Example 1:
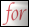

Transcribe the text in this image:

for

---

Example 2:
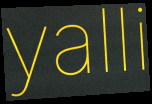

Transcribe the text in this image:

yalli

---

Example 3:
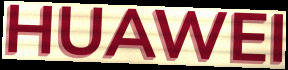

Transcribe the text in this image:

HUAWEI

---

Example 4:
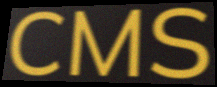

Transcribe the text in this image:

CMS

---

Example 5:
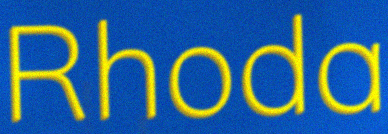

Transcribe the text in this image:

Rhoda